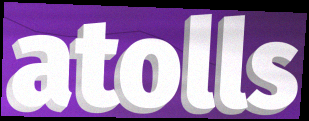
atolls